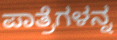
ಪಾತ್ರೆಗಳನ್ನ